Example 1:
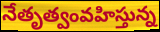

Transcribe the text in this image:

నేతృత్వంవహిస్తున్న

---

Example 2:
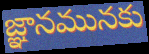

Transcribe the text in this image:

జ్ఞానమునకు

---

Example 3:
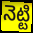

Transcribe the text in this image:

నెట్టి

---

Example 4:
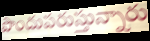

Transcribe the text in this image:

పొందుపరుస్తున్నారు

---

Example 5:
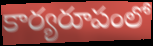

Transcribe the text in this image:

కార్యరూపంలో